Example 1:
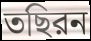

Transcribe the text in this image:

তছিরন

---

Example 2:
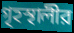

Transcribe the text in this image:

গৃহস্থালীর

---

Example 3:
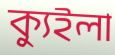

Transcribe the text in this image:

ক্যুইলা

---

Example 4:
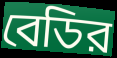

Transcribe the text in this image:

বেডির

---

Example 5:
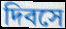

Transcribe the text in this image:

দিবসে